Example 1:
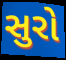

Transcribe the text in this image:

સુરો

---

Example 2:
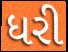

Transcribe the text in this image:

ધરી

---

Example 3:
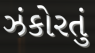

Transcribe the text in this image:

ઝંકોરતું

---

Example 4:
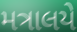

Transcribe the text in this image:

મત્રાલયે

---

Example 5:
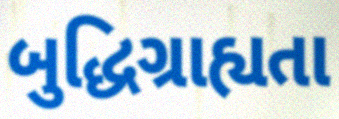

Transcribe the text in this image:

બુદ્ધિગ્રાહ્યતા